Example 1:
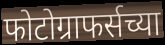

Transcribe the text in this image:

फोटोग्राफर्सच्या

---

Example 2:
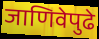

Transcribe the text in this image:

जाणिवेपुढे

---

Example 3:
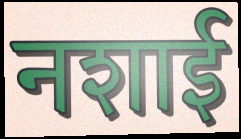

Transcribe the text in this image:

नशाई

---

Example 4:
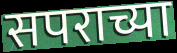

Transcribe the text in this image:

सपराच्या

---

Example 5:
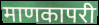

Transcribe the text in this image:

माणकापरी